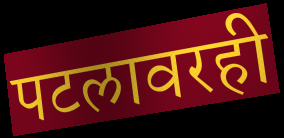
पटलावरही